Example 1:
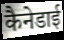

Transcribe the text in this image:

कैनेडाई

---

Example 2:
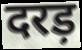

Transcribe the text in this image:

दरड़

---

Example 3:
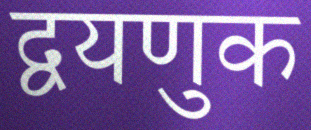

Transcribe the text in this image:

द्वयणुक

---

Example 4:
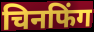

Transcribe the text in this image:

चिनफिंग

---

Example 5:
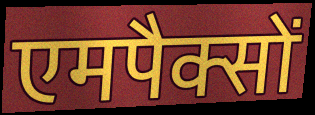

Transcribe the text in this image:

एमपैक्सों